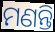
ମଣନ୍ତି